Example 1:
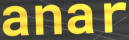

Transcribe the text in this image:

anar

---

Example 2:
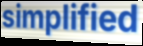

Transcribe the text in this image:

simplified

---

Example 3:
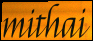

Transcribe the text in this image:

mithai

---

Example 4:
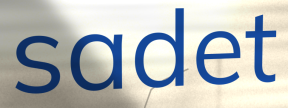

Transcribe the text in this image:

sadet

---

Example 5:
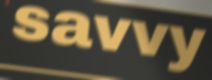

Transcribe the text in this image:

savvy